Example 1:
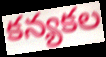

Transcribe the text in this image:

కన్యకల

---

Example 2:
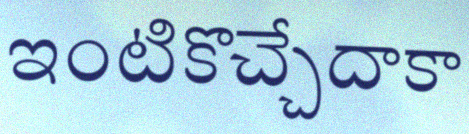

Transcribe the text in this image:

ఇంటికొచ్చేదాకా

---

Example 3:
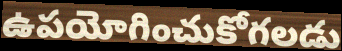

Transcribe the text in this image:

ఉపయోగించుకోగలడు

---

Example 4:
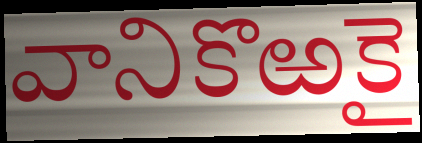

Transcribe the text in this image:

వానికొఱకై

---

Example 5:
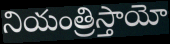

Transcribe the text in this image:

నియంత్రిస్తాయో